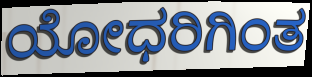
ಯೋಧರಿಗಿಂತ